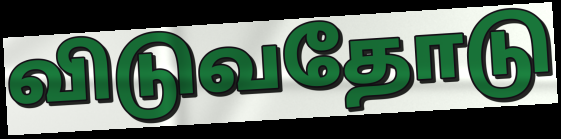
விடுவதோடு